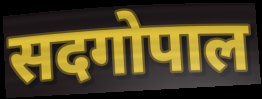
सदगोपाल